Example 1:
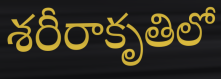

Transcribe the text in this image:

శరీరాకృతిలో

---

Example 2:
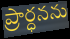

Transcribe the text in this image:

ప్రార్ధనను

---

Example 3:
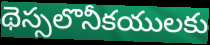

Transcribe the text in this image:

థెస్సలొనీకయులకు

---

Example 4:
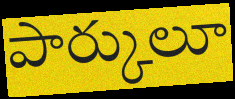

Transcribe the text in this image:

పార్కులూ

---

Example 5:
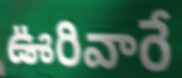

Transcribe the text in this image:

ఊరివారే